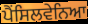
ਪੈਂਸਿਲਵੇਨਿਆ